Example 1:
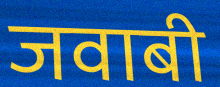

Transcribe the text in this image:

जवाबी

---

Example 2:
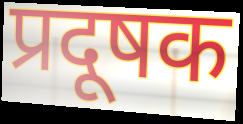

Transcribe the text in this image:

प्रदूषक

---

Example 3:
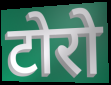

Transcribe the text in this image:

टोरो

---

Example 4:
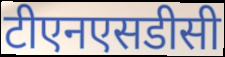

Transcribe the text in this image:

टीएनएसडीसी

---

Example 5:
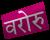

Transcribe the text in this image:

वरोरु